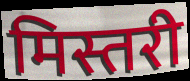
मिस्तरी